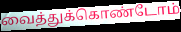
வைத்துக்கொண்டோம்